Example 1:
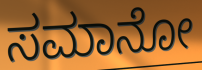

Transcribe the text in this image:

ಸಮಾನೋ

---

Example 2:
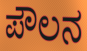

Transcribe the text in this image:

ಪೌಲನ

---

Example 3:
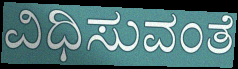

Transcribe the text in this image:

ವಿಧಿಸುವಂತೆ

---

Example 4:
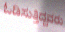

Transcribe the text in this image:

ಓಡಿಸುತ್ತಿದ್ದವರು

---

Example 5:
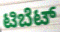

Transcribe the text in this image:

ಟಿಬೆಟ್